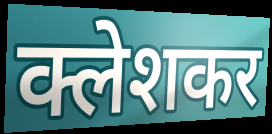
क्लेशकर